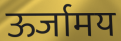
ऊर्जामय